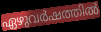
ഏഴുവർഷത്തിൽ